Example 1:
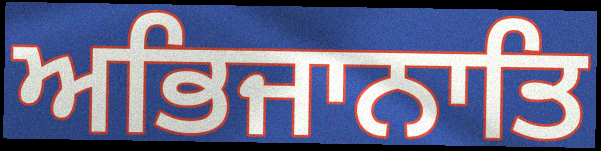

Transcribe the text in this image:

ਅਭਿਜਾਨਾਤਿ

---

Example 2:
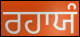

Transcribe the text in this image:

ਰਹਾਯੰ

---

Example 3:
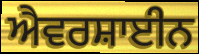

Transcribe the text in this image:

ਐਵਰਸ਼ਾਈਨ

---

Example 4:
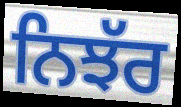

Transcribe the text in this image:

ਨਿਝੱਰ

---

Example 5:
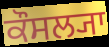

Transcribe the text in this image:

ਕੌਸਲ੍ਯਾ